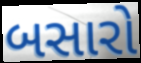
બસારો